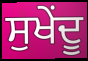
ਸੁਖੇਂਦੂ